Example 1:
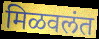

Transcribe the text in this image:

मिळवलंत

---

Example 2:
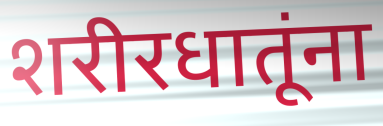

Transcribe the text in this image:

शरीरधातूंना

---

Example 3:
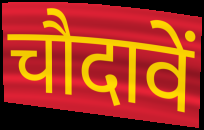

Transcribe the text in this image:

चौदावें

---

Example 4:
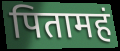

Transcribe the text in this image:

पितामहं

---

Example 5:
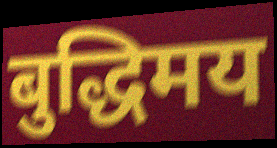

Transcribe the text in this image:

बुद्धिमय